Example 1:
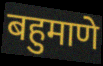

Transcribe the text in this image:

बहुमाणे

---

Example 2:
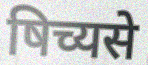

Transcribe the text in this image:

षिच्यसे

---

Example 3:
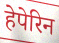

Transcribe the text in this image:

हेपेरिन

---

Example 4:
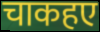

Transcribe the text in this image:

चाकहए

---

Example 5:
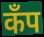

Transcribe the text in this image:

कॅंप